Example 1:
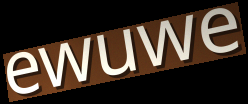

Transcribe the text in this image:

ewuwe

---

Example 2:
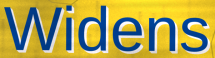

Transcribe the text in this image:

Widens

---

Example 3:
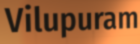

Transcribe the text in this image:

Vilupuram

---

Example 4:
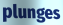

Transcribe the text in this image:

plunges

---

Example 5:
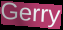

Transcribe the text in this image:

Gerry